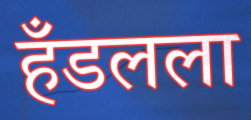
हँडलला